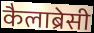
कैलाब्रेसी